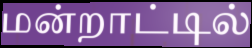
மன்றாட்டில்